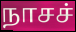
நாசச்